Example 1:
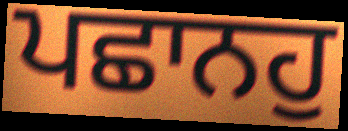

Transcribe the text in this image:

ਪਛਾਨਹੁ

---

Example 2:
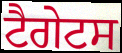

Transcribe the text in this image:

ਟੈਗੇਟਸ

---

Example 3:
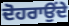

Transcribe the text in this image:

ਦੋਹਰਾਉਂਦੇ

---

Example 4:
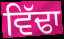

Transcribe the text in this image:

ਵਿੱਢਾ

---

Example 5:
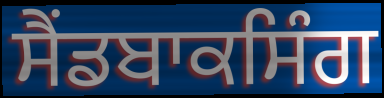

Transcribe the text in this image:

ਸੈਂਡਬਾਕਸਿੰਗ